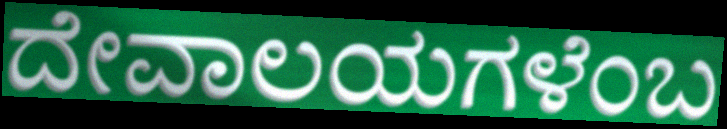
ದೇವಾಲಯಗಳೆಂಬ